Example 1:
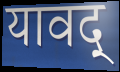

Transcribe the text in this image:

यावद्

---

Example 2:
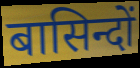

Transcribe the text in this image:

बासिन्दों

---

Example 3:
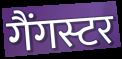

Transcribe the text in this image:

गैंगस्‍टर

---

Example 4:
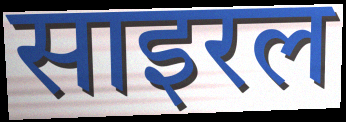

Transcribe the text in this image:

साइरल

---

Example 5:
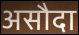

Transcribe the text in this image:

असौदा